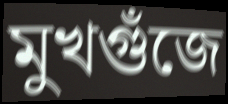
মুখগুঁজে